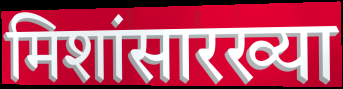
मिशांसारख्या